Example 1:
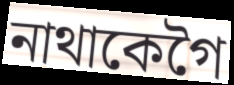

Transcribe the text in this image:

নাথাকেগৈ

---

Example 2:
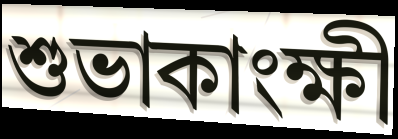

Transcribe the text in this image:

শুভাকাংক্ষী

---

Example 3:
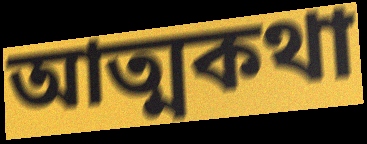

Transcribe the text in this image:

আত্মকথা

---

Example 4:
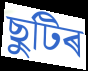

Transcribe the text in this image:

ছুটিৰ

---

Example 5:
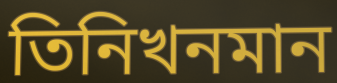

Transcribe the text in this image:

তিনিখনমান